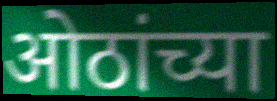
ओठांच्या